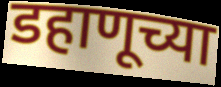
डहाणूच्या